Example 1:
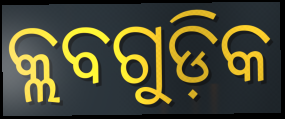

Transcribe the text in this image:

କ୍ଲବଗୁଡ଼ିକ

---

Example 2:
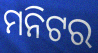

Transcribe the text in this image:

ମନିଟର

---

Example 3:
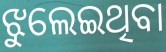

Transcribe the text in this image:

ଝୁଲେଇଥିବା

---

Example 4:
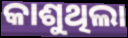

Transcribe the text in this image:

କାଶୁଥିଲା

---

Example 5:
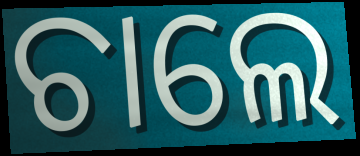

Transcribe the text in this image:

ଚାଲେ